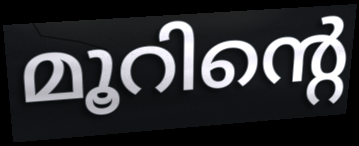
മൂറിന്റെ